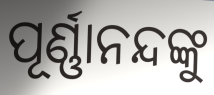
ପୂର୍ଣ୍ଣାନନ୍ଦଙ୍କୁ